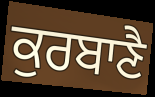
ਕੁਰਬਾਣੈ